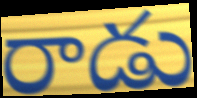
రాడు